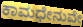
ಕಾಮಧೇನುವೇ